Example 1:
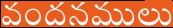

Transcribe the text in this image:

వందనములు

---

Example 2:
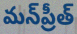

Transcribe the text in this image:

మన్‌ప్రీత్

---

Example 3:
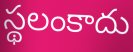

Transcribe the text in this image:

స్థలంకాదు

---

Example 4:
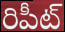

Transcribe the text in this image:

రిపీట్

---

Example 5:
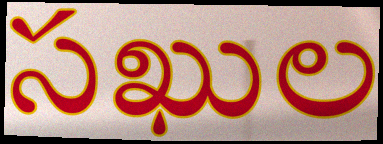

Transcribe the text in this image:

సఖుల